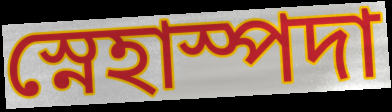
স্নেহাস্পদা